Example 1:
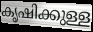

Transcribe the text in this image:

കൃഷിക്കുള്ള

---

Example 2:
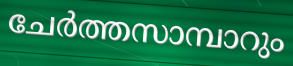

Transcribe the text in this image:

ചേർത്തസാമ്പാറും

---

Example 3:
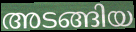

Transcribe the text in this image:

അടങ്ങിയ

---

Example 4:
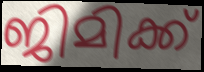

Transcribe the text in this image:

ജിമിക്ക്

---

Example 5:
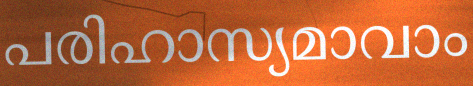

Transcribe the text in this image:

പരിഹാസ്യമാവാം